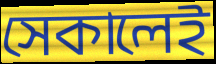
সেকালেই